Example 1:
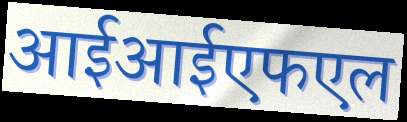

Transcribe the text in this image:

आईआईएफएल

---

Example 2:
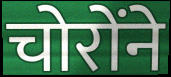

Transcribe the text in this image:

चोरोंने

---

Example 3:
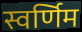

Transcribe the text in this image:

स्‍वर्णिम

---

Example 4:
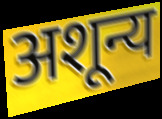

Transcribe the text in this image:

अशून्य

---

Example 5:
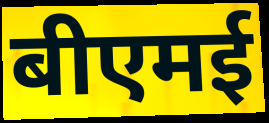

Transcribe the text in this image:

बीएमई